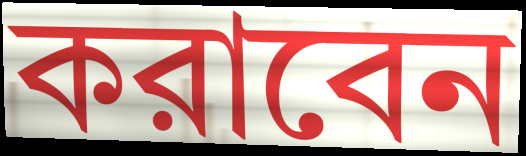
করাবেন